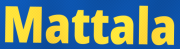
Mattala